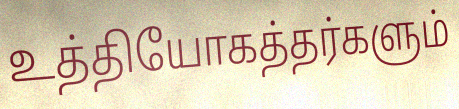
உத்தியோகத்தர்களும்